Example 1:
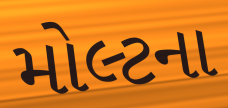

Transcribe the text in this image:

મોલ્ટના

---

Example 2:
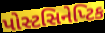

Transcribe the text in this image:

પોસ્ટસિનેપ્ટિક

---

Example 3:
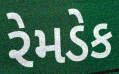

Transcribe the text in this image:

રેમડેક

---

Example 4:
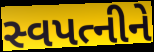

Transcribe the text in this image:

સ્વપત્નીને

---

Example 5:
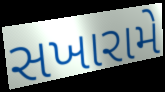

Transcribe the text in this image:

સખારામે